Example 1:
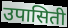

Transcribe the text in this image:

उपासिती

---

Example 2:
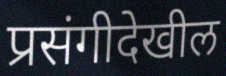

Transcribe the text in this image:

प्रसंगीदेखील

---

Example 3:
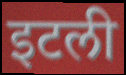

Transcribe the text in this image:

इटली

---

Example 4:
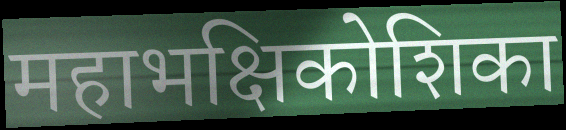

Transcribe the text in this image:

महाभक्षिकोशिका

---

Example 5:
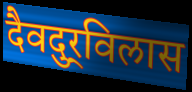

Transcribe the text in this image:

दैवदुर्विलास